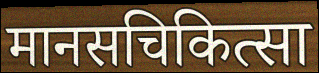
मानसचिकित्सा